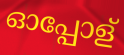
ഓപ്പോള്